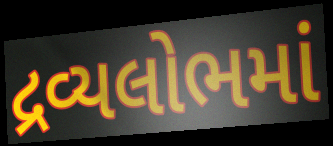
દ્રવ્યલોભમાં